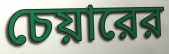
চেয়ারের